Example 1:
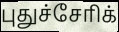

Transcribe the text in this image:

புதுச்சேரிக்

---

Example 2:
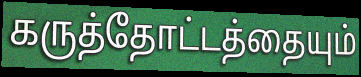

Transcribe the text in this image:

கருத்தோட்டத்தையும்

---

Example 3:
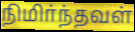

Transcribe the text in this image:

நிமிர்ந்தவள்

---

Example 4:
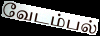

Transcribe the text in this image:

வேடம்பல்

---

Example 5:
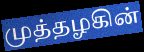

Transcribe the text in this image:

முத்தழகின்